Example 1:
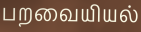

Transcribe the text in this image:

பறவையியல்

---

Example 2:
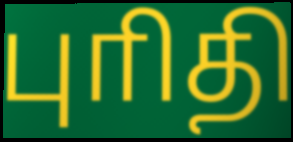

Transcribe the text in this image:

புரிதி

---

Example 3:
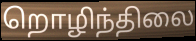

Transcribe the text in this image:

றொழிந்திலை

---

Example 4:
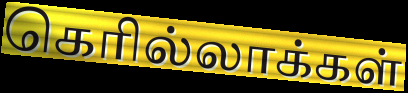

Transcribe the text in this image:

கெரில்லாக்கள்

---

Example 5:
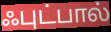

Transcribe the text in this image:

ஃபுட்பால்